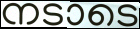
നടാടെ